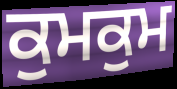
ਕੁਮਕੁਮ